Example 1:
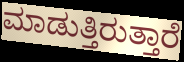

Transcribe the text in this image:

ಮಾಡುತ್ತಿರುತ್ತಾರೆ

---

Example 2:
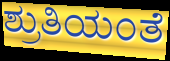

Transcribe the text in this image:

ಶ್ರುತಿಯಂತೆ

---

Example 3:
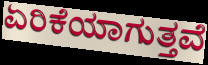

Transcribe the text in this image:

ಏರಿಕೆಯಾಗುತ್ತವೆ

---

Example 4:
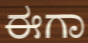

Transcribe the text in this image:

ಈಗಾ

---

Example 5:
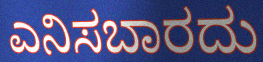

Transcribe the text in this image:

ಎನಿಸಬಾರದು